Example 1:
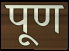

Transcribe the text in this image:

पूण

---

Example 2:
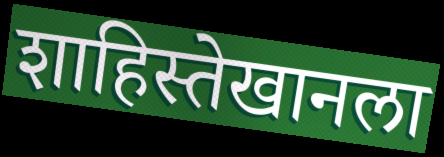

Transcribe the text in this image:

शाहिस्तेखानला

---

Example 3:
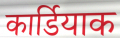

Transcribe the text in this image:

कार्डियाक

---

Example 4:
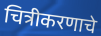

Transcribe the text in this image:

चित्रीकरणाचे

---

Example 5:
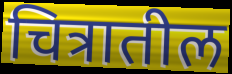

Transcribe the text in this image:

चित्रातील